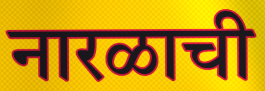
नारळाची